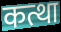
कत्था